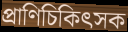
প্রাণিচিকিৎসক